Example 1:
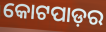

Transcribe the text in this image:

କୋଟପାଡ଼ର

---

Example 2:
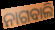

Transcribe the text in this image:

ନାଗବାଲି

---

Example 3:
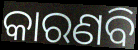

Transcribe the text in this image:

କାରଣବି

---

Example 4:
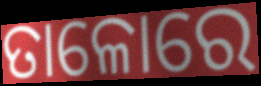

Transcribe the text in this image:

ତାଳୋରେ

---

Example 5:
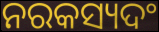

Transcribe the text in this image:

ନରକସ୍ୟଦଂ